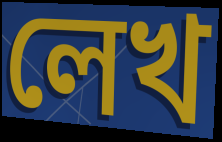
লেখ